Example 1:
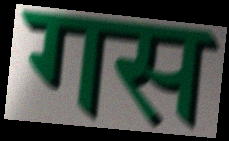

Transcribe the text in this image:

गस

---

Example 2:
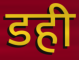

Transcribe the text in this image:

डही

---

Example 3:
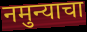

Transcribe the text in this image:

नमुन्याचा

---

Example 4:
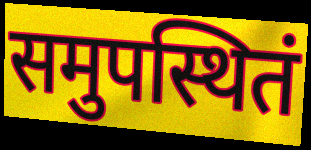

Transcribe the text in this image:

समुपस्थितं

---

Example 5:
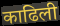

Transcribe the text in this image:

काढिली